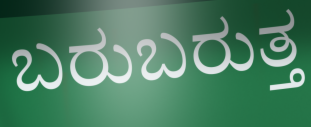
ಬರುಬರುತ್ತ